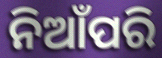
ନିଆଁପରି